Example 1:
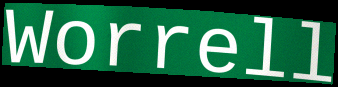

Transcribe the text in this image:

Worrell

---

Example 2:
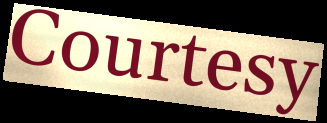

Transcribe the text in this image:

Courtesy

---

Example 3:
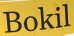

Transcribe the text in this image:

Bokil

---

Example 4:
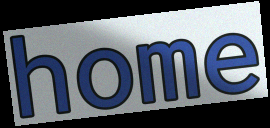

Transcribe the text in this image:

home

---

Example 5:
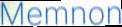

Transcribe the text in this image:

Memnon